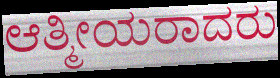
ಆತ್ಮೀಯರಾದರು